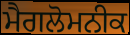
ਮੈਗਲੋਮਨੀਕ